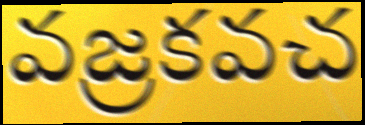
వజ్రకవచ